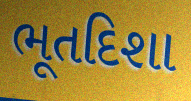
ભૂતદિશા